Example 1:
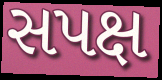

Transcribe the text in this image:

સપક્ષ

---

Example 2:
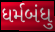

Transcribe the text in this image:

ધર્મબંધુ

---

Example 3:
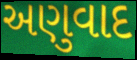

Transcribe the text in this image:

અણુવાદ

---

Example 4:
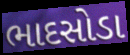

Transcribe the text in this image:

ભાદસોડા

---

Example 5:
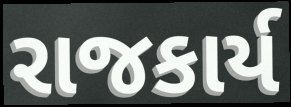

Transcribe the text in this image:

રાજકાર્ય